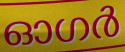
ഓഗർ